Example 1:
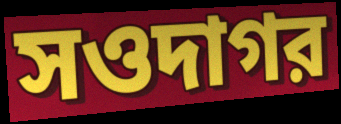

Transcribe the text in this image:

সওদাগর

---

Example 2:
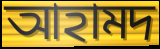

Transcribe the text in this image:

আহামদ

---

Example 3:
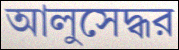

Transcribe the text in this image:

আলুসেদ্ধর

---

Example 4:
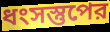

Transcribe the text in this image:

ধংসস্তুপের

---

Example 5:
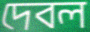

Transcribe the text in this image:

দেবল